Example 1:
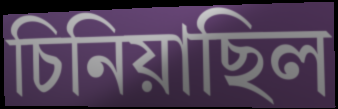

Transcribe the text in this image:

চিনিয়াছিল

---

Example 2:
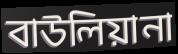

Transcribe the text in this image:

বাউলিয়ানা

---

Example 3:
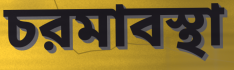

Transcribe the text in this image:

চরমাবস্থা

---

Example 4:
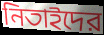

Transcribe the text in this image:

নিতাইদের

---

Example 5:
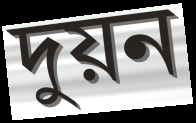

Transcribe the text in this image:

দুয়ন